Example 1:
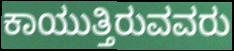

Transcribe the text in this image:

ಕಾಯುತ್ತಿರುವವರು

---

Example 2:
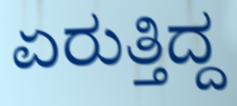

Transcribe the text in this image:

ಏರುತ್ತಿದ್ದ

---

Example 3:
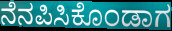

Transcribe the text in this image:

ನೆನಪಿಸಿಕೊಂಡಾಗ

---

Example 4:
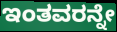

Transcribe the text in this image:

ಇಂತವರನ್ನೇ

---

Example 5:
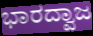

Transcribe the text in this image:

ಭಾರದ್ವಾಜ